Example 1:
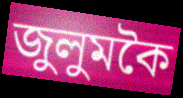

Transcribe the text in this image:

জুলুমকৈ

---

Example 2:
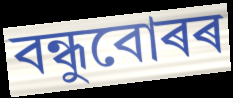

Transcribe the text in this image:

বন্ধুবোৰৰ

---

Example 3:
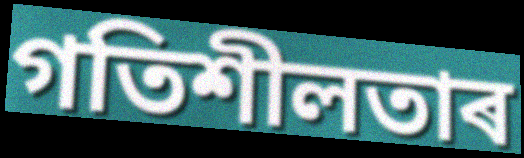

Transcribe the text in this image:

গতিশীলতাৰ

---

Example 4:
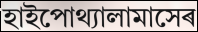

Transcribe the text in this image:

হাইপোথ্যালামাসেৰ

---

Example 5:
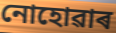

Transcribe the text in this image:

নোহোৱাৰ